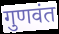
गुणवंत